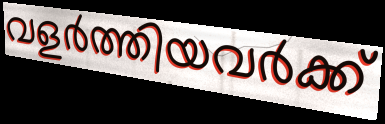
വളർത്തിയവർക്ക്